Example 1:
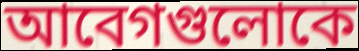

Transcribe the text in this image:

আবেগগুলোকে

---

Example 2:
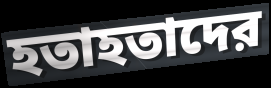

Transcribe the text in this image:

হতাহতাদের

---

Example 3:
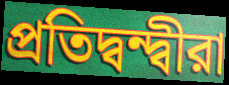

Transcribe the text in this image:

প্রতিদ্বন্দ্বীরা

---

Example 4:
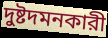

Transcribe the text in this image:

দুষ্টদমনকারী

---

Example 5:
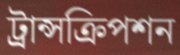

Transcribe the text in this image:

ট্রান্সক্রিপশন